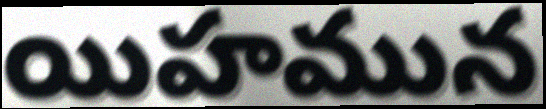
యిహమున